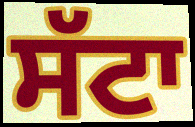
ਸੱਟਾ